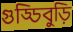
গুড্ডিবুড়ি